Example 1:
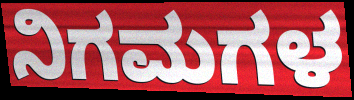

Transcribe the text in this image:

ನಿಗಮಗಳ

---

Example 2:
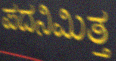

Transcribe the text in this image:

ಪದನಿಮಿತ್ತ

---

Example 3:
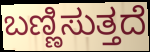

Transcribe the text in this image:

ಬಣ್ಣಿಸುತ್ತದೆ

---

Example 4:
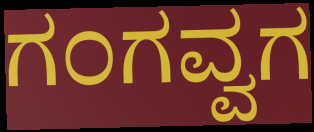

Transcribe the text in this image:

ಗಂಗವ್ವಗ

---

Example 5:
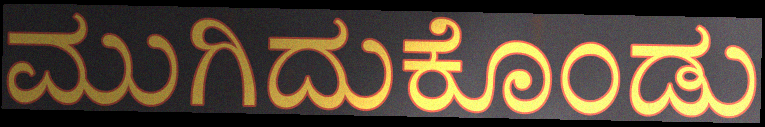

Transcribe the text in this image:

ಮುಗಿದುಕೊಂಡು